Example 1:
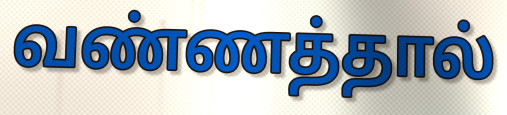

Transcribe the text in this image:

வண்ணத்தால்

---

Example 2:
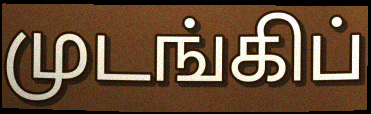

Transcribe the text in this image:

முடங்கிப்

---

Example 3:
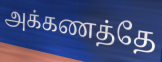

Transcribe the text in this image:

அக்கணத்தே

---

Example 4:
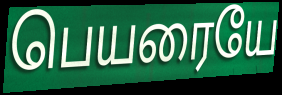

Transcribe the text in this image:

பெயரையே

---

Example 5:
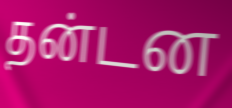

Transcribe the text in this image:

தன்டன